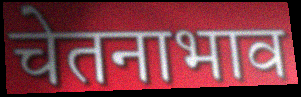
चेतनाभाव